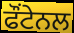
ਫੌਂਟੇਨਲ